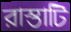
রাস্তাটি